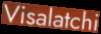
Visalatchi